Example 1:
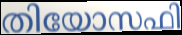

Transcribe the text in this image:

തിയോസഫി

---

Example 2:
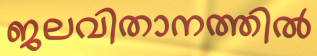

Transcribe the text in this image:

ജലവിതാനത്തിൽ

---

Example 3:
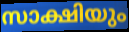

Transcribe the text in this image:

സാക്ഷിയും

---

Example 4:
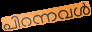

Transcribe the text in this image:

പിറന്നവൾ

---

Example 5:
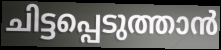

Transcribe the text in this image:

ചിട്ടപ്പെടുത്താൻ